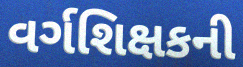
વર્ગશિક્ષકની